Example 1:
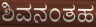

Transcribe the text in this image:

ಶಿವನಂತಹ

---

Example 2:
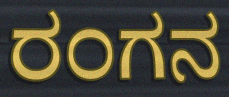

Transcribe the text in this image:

ರಂಗನ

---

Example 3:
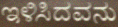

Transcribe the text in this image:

ಇಳಿಸಿದವನು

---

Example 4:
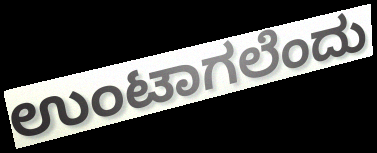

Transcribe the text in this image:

ಉಂಟಾಗಲೆಂದು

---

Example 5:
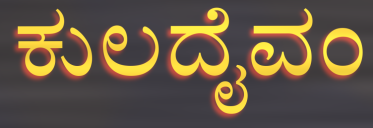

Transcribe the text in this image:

ಕುಲದೈವಂ